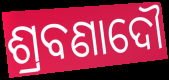
ଶ୍ରବଣାଦୌ